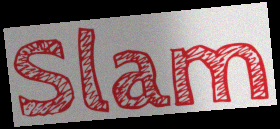
Slam